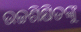
ଉଚ୍ଚଶିକ୍ଷିତଙ୍କୁ